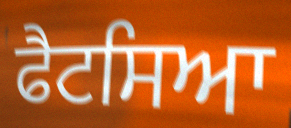
ਫੈਟਸਿਆ